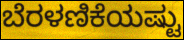
ಬೆರಳಣಿಕೆಯಷ್ಟು